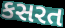
કસરત